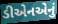
ડીએનએનું